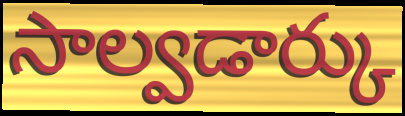
సాల్వడార్కు